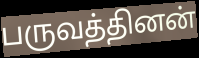
பருவத்தினன்